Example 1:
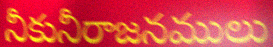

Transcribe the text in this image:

నీకునీరాజనములు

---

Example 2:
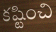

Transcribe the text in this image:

కష్టించి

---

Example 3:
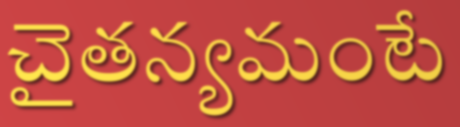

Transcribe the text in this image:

చైతన్యమంటే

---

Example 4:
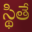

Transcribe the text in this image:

స్థితే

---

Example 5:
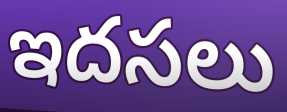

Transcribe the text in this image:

ఇదసలు